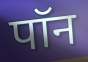
पॉन